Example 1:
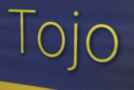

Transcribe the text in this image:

Tojo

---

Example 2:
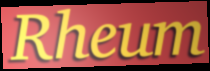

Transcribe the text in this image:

Rheum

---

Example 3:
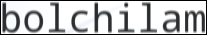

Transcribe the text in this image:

bolchilam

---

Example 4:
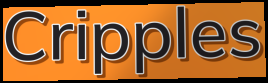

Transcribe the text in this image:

Cripples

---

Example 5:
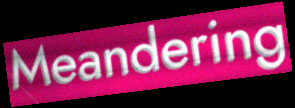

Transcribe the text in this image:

Meandering